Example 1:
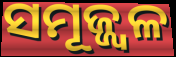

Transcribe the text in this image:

ସମୂଜ୍ଜ୍ୱଳ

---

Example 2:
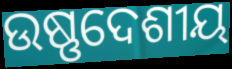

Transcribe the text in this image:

ଉଷ୍ଣଦେଶୀୟ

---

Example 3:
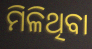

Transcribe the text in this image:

ମିଳିଥିବା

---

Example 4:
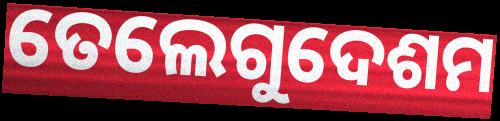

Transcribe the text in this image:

ତେଲେଗୁଦେଶମ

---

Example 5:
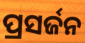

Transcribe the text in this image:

ପ୍ରସର୍ଜନ